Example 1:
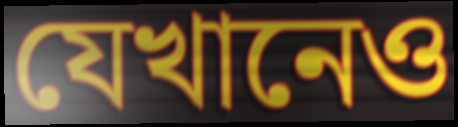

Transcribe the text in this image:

যেখানেও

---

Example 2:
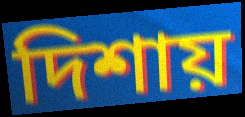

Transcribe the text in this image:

দিশায়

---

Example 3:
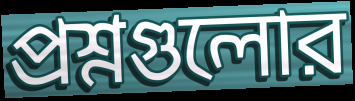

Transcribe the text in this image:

প্রশ্নগুলোর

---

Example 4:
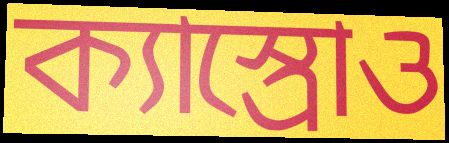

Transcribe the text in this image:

ক্যাস্ত্রোও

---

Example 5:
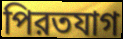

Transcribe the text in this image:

পিরতযাগ